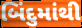
બિંદુમાંથી